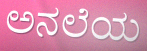
ಅನಲೆಯ